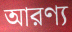
আরণ্য